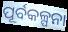
ପୂର୍ବକଳ୍ପନା